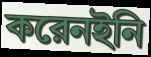
করেনইনি